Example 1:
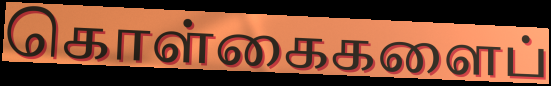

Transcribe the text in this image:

கொள்கைகளைப்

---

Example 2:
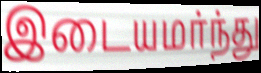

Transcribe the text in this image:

இடையமர்ந்து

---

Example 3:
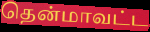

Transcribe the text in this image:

தென்மாவட்ட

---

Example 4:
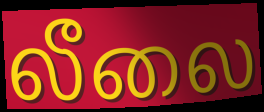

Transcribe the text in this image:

லீலை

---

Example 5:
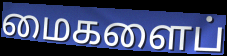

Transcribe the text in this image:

மைகளைப்